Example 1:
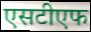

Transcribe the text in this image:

एसटीएफ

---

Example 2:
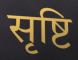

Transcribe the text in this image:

सृष्टि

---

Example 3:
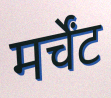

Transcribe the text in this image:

मर्चेंट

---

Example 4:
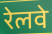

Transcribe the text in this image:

रेलवे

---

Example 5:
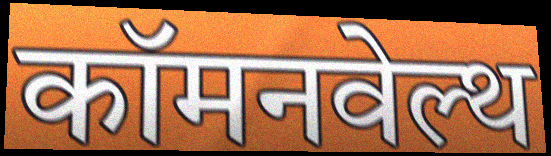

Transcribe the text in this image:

कॉमनवेल्थ